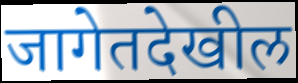
जागेतदेखील